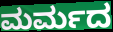
ಮರ್ಮದ